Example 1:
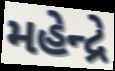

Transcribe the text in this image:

મહેન્દ્રે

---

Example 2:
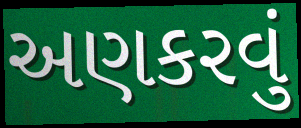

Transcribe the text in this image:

અણકરવું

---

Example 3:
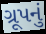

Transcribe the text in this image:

ગ્રૂપનું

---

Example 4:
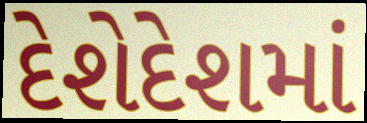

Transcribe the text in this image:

દેશેદેશમાં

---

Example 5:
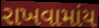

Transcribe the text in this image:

રાખવામાંય